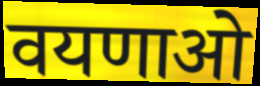
वयणाओ